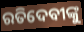
ରତିଦେବୀଙ୍କୁ